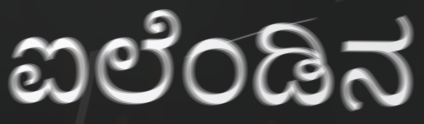
ಐಲೆಂಡಿನ